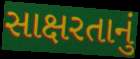
સાક્ષરતાનું